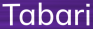
Tabari